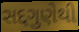
સદ્દગુણેથી